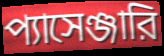
প্যাসেঞ্জারি